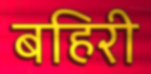
बहिरी